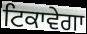
ਟਿਕਾਵੇਗਾ